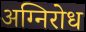
अग्निरोध